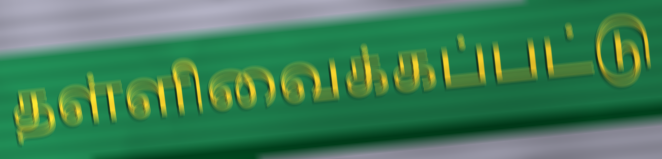
தள்ளிவைக்கப்பட்டு